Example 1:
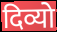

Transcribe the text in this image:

दिव्यो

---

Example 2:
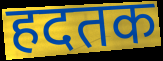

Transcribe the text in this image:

हदतक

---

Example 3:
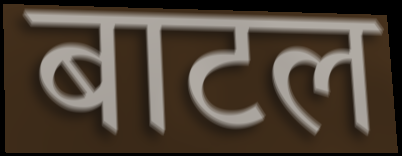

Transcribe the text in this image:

बाटल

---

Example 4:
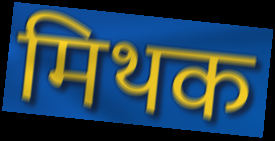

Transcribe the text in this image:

मिथक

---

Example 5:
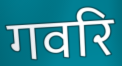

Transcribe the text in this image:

गवरि